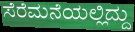
ಸೆರೆಮನೆಯಲ್ಲಿದ್ದು